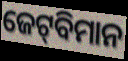
ଜେଟ୍‍ବିମାନ